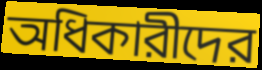
অধিকারীদের